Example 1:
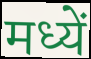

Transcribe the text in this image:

मध्यें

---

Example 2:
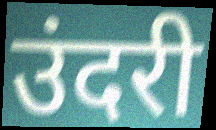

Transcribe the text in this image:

उंदरी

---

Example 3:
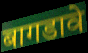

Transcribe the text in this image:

बागडावे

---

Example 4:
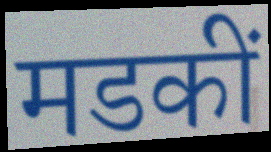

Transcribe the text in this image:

मडकीं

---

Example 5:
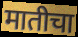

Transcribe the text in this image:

मातीचा